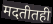
मदतीतही